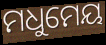
ମଧୁମେୟ